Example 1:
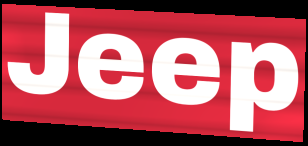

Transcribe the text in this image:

Jeep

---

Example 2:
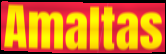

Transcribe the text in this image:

Amaltas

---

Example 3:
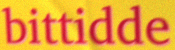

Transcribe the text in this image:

bittidde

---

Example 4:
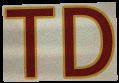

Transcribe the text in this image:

TD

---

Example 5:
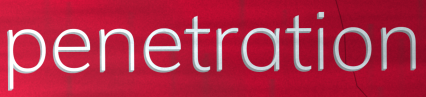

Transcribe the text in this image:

penetration